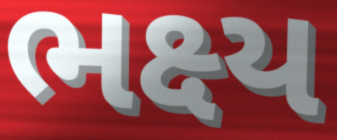
ભક્ષ્ય